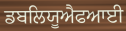
ਡਬਲਿਯੂਐਫਆਈ